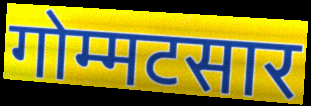
गोम्मटसार